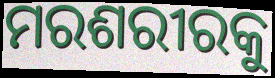
ମରଶରୀରକୁ